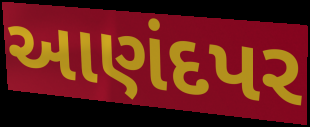
આણંદપર